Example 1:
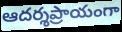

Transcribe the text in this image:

ఆదర్శప్రాయంగా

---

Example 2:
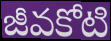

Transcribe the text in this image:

జీవకోటి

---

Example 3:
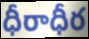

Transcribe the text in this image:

ధీరాధీర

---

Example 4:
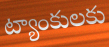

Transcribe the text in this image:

ట్యాంకులకు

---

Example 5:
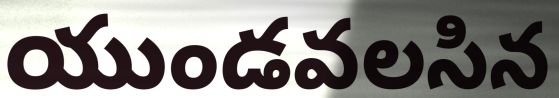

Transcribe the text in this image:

యుండవలసిన